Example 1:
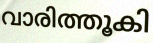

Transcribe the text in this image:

വാരിത്തൂകി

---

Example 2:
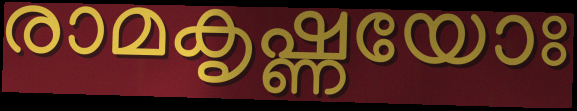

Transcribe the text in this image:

രാമകൃഷ്ണയോഃ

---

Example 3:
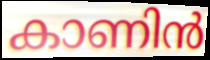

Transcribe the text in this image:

കാണിൻ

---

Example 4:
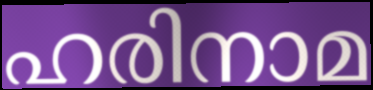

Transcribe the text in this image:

ഹരിനാമ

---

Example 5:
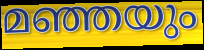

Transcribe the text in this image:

മഞ്ഞയും